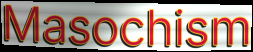
Masochism